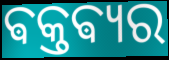
ଵକ୍ତଵ୍ୟର